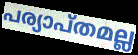
പര്യാപ്തമല്ല